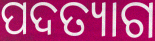
ପଦତ୍ୟାଗ